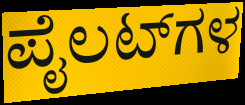
ಪೈಲಟ್‌ಗಳ